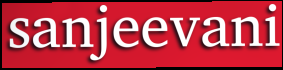
sanjeevani